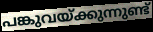
പങ്കുവയ്ക്കുന്നുണ്ട്